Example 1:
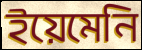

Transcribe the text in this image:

ইয়েমেনি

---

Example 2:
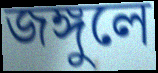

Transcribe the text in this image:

জঙ্গুলে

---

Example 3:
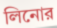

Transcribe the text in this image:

লিনোর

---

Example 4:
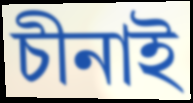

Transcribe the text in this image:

চীনাই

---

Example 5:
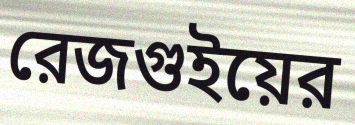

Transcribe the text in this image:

রেজগুইয়ের